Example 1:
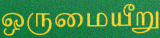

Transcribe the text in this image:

ஒருமையீறு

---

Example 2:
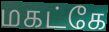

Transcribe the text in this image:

மகட்கே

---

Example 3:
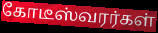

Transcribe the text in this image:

கோடீஸ்வரர்கள்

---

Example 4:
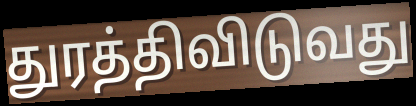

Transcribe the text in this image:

துரத்திவிடுவது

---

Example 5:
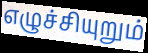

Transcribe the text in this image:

எழுச்சியுறும்